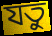
যতু